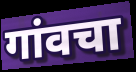
गांवचा